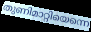
തുണിമാറ്റിയെന്നെ